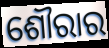
ଶୌରାର